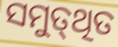
ସମୁତ୍‌ଥିତ